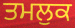
ਤਮਲੁਕ